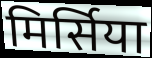
मिर्सिया